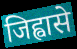
जिह्वासे